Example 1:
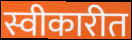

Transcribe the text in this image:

स्वीकारीत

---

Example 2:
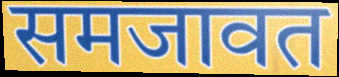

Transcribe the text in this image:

समजावत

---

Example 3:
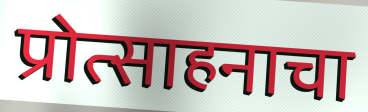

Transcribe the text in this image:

प्रोत्साहनाचा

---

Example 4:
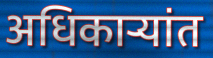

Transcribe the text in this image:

अधिकाऱ्यांत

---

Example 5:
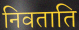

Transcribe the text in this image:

निवताति